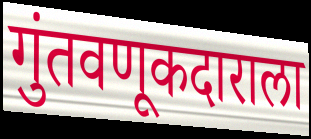
गुंतवणूकदाराला